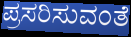
ಪ್ರಸರಿಸುವಂತೆ